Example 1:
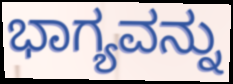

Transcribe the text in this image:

ಭಾಗ್ಯವನ್ನು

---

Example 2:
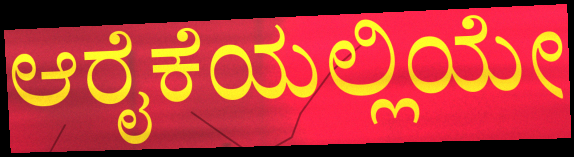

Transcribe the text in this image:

ಆರೈಕೆಯಲ್ಲಿಯೇ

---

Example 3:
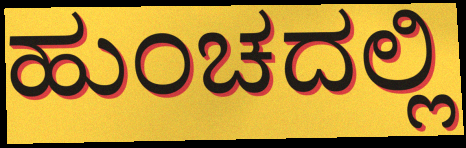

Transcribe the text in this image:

ಹುಂಚದಲ್ಲಿ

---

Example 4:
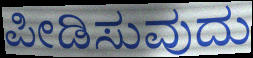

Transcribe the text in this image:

ಪೀಡಿಸುವುದು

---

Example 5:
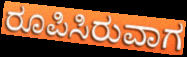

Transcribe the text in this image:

ರೂಪಿಸಿರುವಾಗ